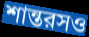
শান্তরসও